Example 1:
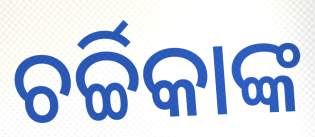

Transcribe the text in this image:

ଚର୍ଚ୍ଚିକାଙ୍କ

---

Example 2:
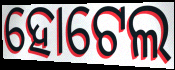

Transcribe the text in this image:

ହୋଟେଲ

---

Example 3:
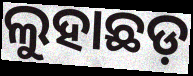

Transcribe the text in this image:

ଲୁହାଛଡ଼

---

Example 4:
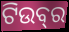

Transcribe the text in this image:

ଟିଉବ୍‍ର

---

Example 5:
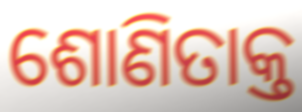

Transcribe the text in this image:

ଶୋଣିତାକ୍ତ